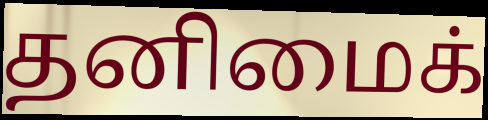
தனிமைக்